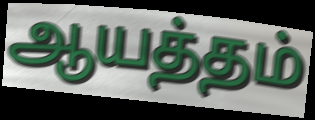
ஆயத்தம்